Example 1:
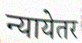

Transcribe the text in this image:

न्यायेतर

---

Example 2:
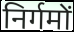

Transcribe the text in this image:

निर्गमों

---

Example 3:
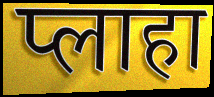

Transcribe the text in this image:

प्लाहा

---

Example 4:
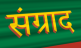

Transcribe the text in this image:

संग्राद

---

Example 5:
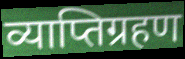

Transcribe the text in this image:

व्याप्तिग्रहण